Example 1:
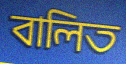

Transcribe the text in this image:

বালিত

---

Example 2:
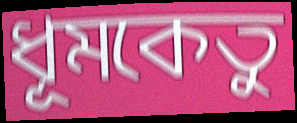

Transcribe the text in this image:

ধূমকেতু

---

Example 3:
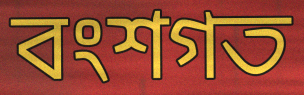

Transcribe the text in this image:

বংশগত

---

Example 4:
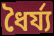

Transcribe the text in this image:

ধৈৰ্য্য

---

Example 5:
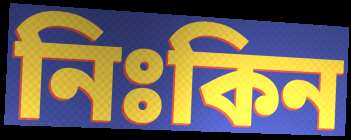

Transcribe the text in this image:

নিঃকিন